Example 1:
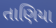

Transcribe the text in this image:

તાણિયા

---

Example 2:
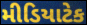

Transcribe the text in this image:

મીડિયાટેક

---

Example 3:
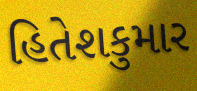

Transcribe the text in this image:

હિતેશકુમાર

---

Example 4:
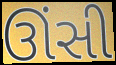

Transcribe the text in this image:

ઊંસી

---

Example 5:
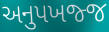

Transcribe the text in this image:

અનુપખજ્જ